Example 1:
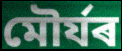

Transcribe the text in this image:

মৌৰ্যৰ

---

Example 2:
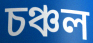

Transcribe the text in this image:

চঞ্চল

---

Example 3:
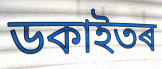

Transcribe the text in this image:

ডকাইতৰ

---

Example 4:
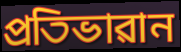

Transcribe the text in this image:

প্ৰতিভাৱান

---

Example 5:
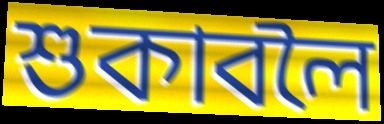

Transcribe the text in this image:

শুকাবলৈ